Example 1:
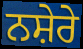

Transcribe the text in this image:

ਨਸ਼ੇਰੇ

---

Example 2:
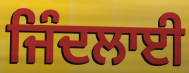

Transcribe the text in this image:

ਜਿੰਦਲਾਈ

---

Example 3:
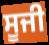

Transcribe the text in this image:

ਸੂਜੀ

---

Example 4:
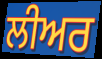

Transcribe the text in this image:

ਲੀਅਰ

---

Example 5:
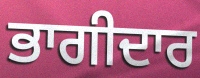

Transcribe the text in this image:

ਭਾਗੀਦਾਰ